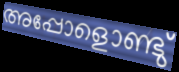
അപ്പോളൊണ്ടു്